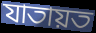
যাতায়ত